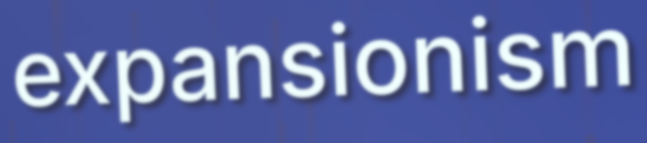
expansionism